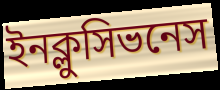
ইনক্লুসিভনেস